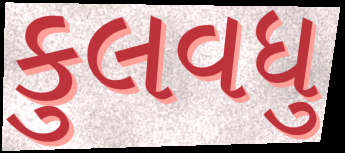
કુલવધુ